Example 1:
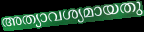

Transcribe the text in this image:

അത്യാവശ്യമായതു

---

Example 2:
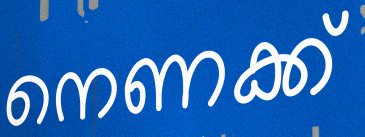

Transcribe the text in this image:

നെണക്ക്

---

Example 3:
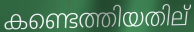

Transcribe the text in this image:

കണ്ടെത്തിയതില്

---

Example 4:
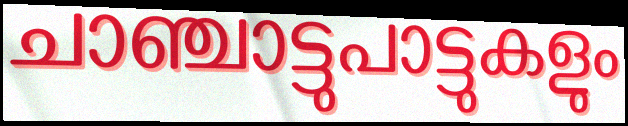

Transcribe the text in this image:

ചാഞ്ചാട്ടുപാട്ടുകളും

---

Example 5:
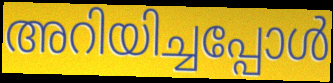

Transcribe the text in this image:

അറിയിച്ചപ്പോൾ